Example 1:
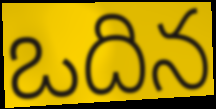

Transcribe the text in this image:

ఒదిన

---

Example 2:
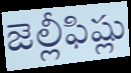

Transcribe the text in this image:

జెల్లీఫిష్లు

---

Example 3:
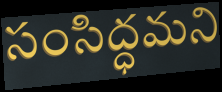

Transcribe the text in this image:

సంసిద్ధమని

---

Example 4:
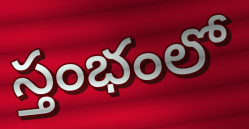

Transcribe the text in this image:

స్తంభంలో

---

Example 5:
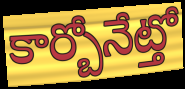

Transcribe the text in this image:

కార్బోనేట్తో